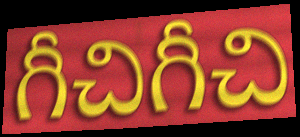
గీచిగీచి